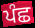
ਪੰਛ